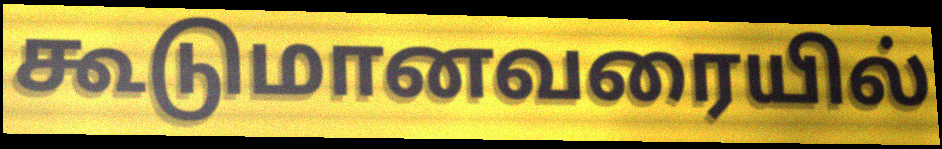
கூடுமானவரையில்